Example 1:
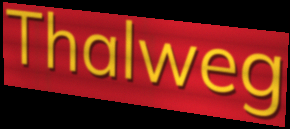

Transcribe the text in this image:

Thalweg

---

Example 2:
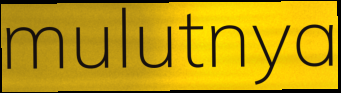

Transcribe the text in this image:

mulutnya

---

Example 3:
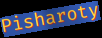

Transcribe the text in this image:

Pisharoty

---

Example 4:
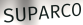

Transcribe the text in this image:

SUPARCO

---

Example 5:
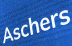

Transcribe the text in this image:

Aschers